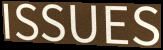
ISSUES